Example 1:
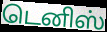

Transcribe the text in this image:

டெனிஸ்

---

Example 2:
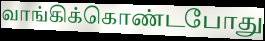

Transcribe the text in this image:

வாங்கிக்கொண்டபோது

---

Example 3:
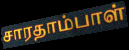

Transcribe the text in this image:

சாரதாம்பாள்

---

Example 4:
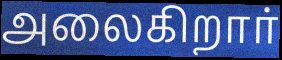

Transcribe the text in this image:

அலைகிறார்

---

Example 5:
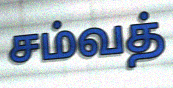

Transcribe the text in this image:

சம்வத்